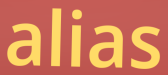
alias